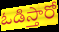
ఓడిస్తారో